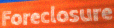
Foreclosure